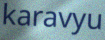
karavyu